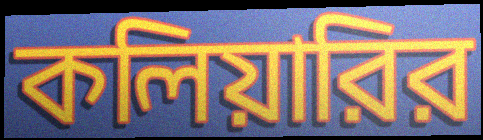
কলিয়ারির